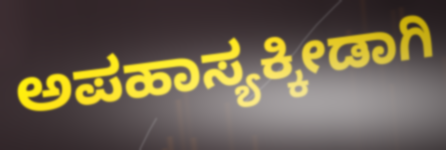
ಅಪಹಾಸ್ಯಕ್ಕೀಡಾಗಿ